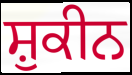
ਸ਼ੁਕੀਨ